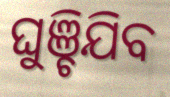
ଘୁଞ୍ଚିଯିବ